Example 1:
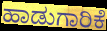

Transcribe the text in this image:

ಹಾಡುಗಾರಿಕೆ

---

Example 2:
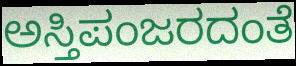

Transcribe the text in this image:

ಅಸ್ತಿಪಂಜರದಂತೆ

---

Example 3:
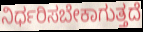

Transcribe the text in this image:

ನಿರ್ಧರಿಸಬೇಕಾಗುತ್ತದೆ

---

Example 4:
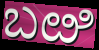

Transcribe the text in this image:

ಬೞಿ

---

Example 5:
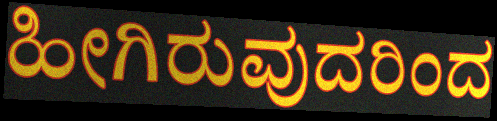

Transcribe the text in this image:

ಹೀಗಿರುವುದರಿಂದ